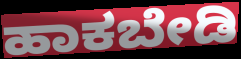
ಹಾಕಬೇಡಿ